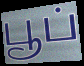
பூப்